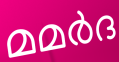
മമർദ